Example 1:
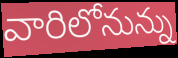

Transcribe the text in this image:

వారిలోనున్ను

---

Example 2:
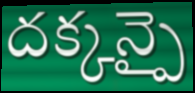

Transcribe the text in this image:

దక్కన్పై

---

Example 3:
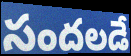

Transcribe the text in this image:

సందలడే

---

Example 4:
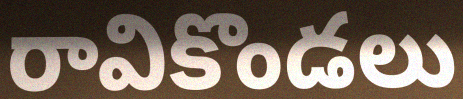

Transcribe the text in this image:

రావికొండలు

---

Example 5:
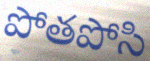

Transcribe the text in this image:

పోతపోసి